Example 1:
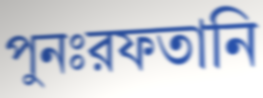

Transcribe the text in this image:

পুনঃরফতানি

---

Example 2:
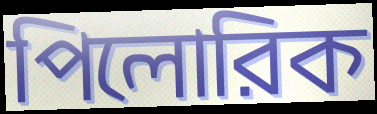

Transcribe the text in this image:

পিলোরিক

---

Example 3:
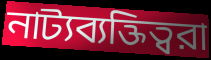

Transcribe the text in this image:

নাট্যব্যক্তিত্বরা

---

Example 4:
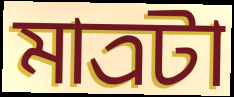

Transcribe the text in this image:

মাত্রটা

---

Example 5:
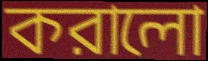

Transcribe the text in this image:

করালো